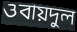
ওবায়দুল